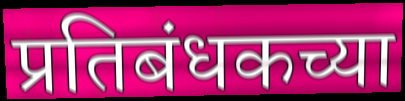
प्रतिबंधकच्या